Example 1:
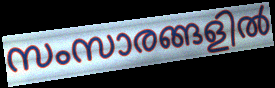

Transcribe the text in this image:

സംസാരങ്ങളിൽ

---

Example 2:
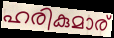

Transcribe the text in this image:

ഹരികുമാര്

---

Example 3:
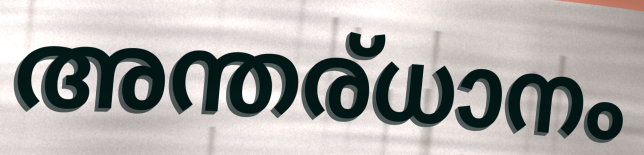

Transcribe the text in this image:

അന്തര്ധാനം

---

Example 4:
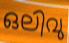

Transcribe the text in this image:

ഒലിവു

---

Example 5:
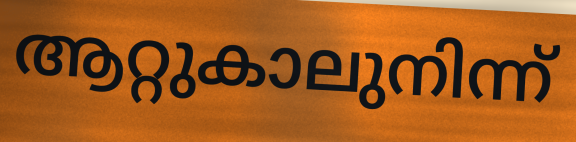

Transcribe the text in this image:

ആറ്റുകാലുനിന്ന്